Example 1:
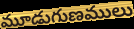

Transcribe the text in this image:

మూడుగుణములు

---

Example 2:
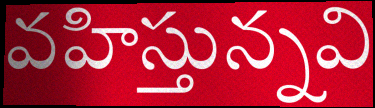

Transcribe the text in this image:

వహిస్తున్నవి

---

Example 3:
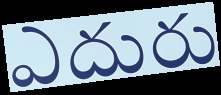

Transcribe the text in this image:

ఎదురు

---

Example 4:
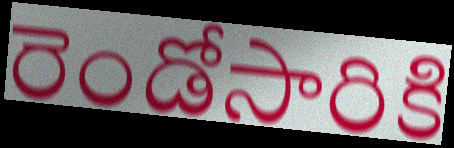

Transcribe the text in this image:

రెండోసారికి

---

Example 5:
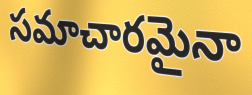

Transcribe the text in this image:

సమాచారమైనా